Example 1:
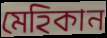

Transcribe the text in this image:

মেহিকান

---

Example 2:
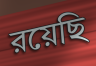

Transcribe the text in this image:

রয়েছি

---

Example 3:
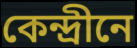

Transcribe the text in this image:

কেন্দ্রীনে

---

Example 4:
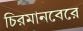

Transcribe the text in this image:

চিরমানবেরে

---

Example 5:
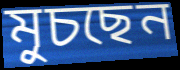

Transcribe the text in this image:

মুচছেন